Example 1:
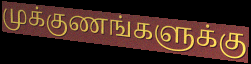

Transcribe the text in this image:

முக்குணங்களுக்கு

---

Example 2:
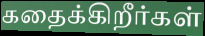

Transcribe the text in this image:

கதைக்கிறீர்கள்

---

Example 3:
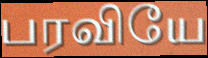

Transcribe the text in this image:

பரவியே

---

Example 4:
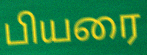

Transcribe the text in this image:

பியரை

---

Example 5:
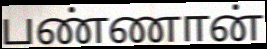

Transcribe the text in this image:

பண்ணான்